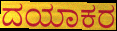
ದಯಾಕರ